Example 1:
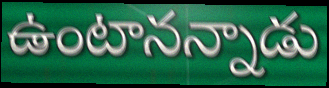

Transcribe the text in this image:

ఉంటానన్నాడు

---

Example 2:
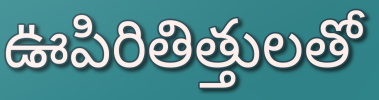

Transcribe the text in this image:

ఊపిరితిత్తులతో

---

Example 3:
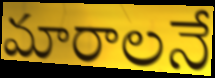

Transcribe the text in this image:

మారాలనే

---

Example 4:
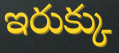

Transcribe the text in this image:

ఇరుక్కు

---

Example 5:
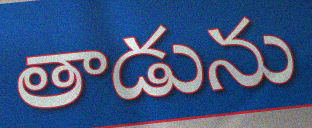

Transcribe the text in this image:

తాడును